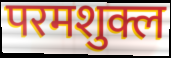
परमशुक्ल